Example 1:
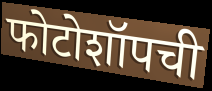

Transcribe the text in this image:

फोटोशॉपची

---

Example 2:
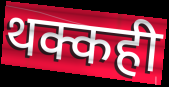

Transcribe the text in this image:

थक्कही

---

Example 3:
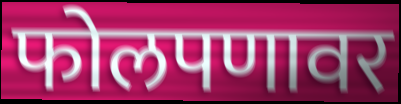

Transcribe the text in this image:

फोलपणावर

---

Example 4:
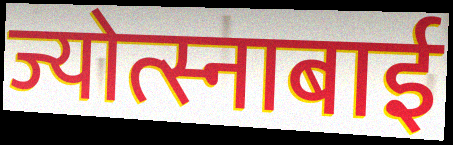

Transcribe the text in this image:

ज्योत्स्नाबाई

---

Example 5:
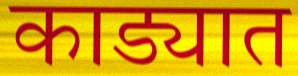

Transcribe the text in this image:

काड्यात